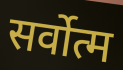
सर्वोत्म